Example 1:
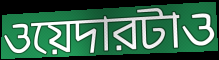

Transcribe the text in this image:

ওয়েদারটাও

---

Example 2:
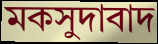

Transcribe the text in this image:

মকসুদাবাদ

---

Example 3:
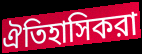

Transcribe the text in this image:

ঐতিহাসিকরা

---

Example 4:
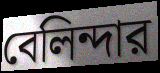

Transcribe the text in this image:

বেলিন্দার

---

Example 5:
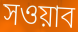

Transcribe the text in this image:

সওয়াব